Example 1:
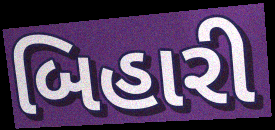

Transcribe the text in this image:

બિહારી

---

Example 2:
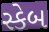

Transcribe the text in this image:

સ્કેબ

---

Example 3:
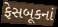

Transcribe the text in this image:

ફેસબૂકનાં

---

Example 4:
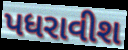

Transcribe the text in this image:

પધરાવીશ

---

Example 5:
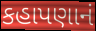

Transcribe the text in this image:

કહાપણાનં